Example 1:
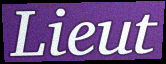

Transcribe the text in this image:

Lieut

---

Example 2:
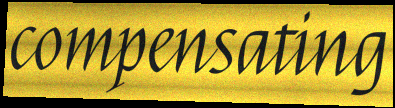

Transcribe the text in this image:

compensating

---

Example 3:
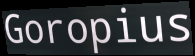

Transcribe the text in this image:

Goropius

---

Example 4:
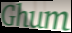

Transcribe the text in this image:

Ghum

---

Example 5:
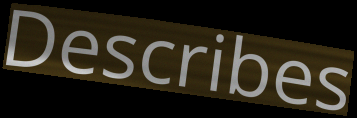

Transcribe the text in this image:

Describes